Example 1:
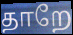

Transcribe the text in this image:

தாறே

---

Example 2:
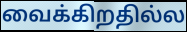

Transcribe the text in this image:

வைக்கிறதில்ல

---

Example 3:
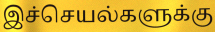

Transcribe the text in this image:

இச்செயல்களுக்கு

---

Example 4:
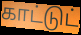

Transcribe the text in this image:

காட்டுட்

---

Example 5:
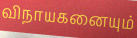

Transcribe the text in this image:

விநாயகனையும்